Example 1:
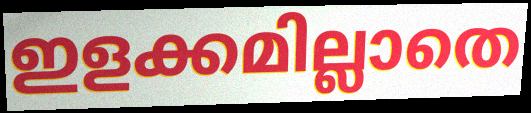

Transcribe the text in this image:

ഇളക്കമില്ലാതെ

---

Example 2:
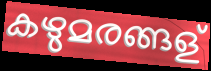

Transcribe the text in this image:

കഴുമരങ്ങള്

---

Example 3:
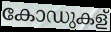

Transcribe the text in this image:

കോഡുകള്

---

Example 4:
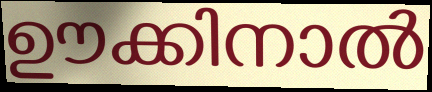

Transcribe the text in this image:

ഊക്കിനാൽ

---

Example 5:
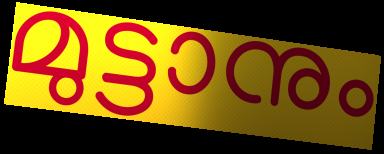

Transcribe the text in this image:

മുട്ടാനും